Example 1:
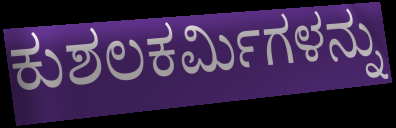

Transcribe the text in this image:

ಕುಶಲಕರ್ಮಿಗಳನ್ನು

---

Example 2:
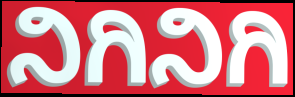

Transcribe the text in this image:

ನಿಗಿನಿಗಿ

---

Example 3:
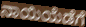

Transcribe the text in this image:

ನಾಯಿಯೆಡೆಗೆ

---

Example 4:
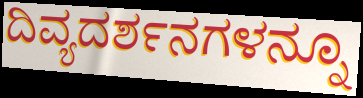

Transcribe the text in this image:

ದಿವ್ಯದರ್ಶನಗಳನ್ನೂ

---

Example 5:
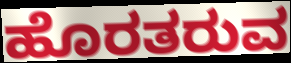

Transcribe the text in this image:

ಹೊರತರುವ